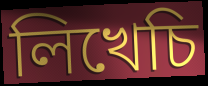
লিখেচি